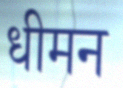
धीमन